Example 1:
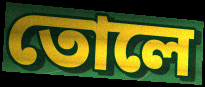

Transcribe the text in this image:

তোলে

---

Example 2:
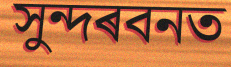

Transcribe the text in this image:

সুন্দৰবনত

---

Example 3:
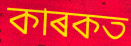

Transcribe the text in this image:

কাৰকত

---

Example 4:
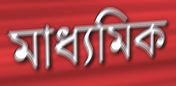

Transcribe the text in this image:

মাধ্যমিক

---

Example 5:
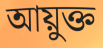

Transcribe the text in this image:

আয়ুক্ত